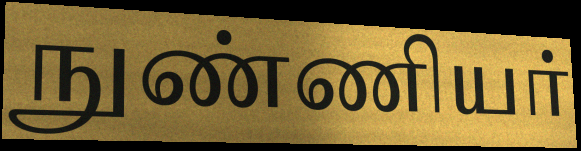
நுண்ணியர்